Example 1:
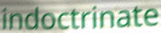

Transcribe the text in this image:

indoctrinate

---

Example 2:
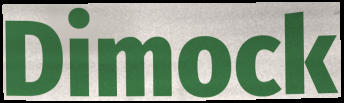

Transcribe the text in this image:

Dimock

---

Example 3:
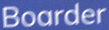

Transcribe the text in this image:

Boarder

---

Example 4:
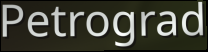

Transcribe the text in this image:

Petrograd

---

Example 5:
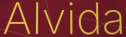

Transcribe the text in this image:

Alvida